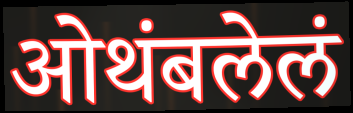
ओथंबलेलं